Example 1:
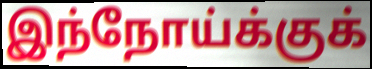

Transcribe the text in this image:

இந்நோய்க்குக்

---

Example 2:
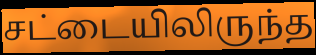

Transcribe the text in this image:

சட்டையிலிருந்த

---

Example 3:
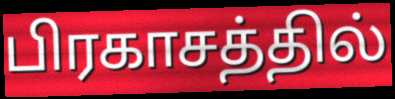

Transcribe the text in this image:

பிரகாசத்தில்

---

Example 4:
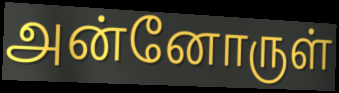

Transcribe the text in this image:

அன்னோருள்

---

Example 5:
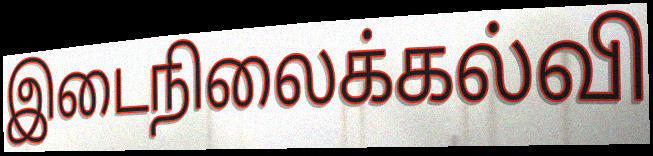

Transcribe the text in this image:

இடைநிலைக்கல்வி